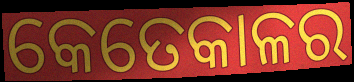
କେତେକାଳର